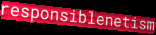
responsiblenetism